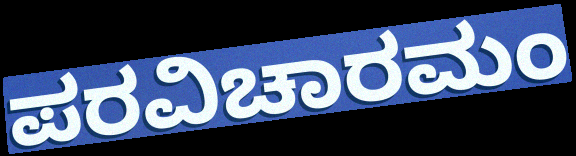
ಪರವಿಚಾರಮಂ